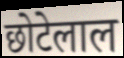
छोटेलाल